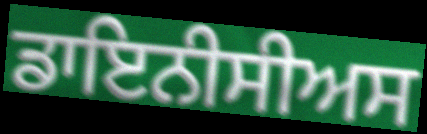
ਡਾਇਨੀਸੀਅਸ